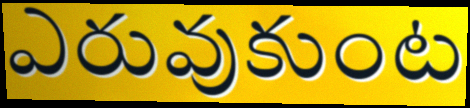
ఎరువుకుంట